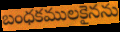
బంధకములకైనను